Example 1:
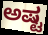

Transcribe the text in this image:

ಅಷ್ಟ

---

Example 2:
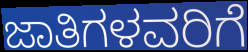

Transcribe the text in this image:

ಜಾತಿಗಳವರಿಗೆ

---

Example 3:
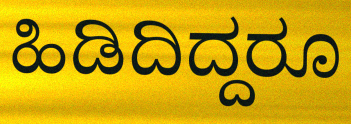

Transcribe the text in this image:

ಹಿಡಿದಿದ್ದರೂ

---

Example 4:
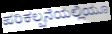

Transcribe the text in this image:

ಪರಿಕಲ್ಪನೆಯಲ್ಲಿಯೂ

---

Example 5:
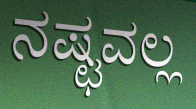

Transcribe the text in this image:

ನಷ್ಟವಲ್ಲ